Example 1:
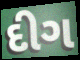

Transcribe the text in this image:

દીગ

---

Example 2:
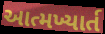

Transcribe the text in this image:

આત્મખ્યાર્ત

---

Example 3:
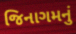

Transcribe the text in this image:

જિનાગમનું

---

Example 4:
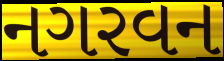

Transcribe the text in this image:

નગરવન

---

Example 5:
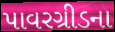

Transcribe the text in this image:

પાવરગ્રીડના